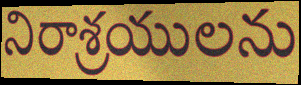
నిరాశ్రయులను